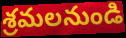
శ్రమలనుండి